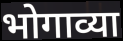
भोगाव्या